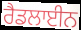
ਰੈਡਲਾਈਨ